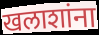
खलाशांना